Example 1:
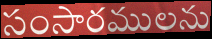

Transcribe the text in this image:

సంసారములను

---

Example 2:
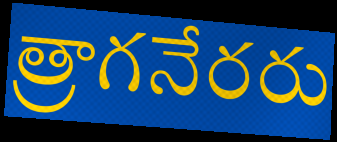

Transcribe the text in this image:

త్రాగనేరరు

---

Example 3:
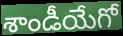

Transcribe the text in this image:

శాండీయేగో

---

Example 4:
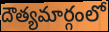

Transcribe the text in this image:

దౌత్యమార్గంలో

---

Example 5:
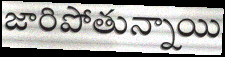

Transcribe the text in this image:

జారిపోతున్నాయి